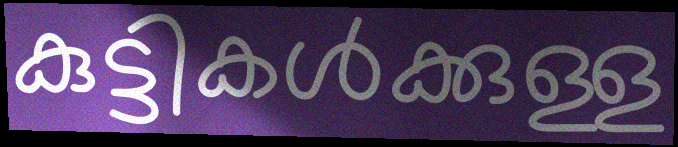
കുട്ടികൾക്കുള്ള